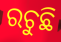
ରଚୁଛି